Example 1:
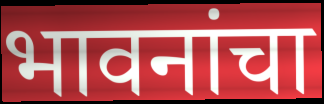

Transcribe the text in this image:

भावनांचा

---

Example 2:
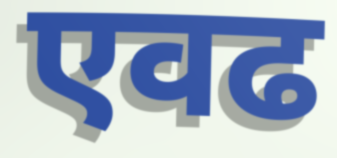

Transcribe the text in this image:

एवढ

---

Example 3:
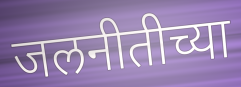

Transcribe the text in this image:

जलनीतीच्या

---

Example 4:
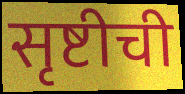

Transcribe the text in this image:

सृष्टीची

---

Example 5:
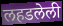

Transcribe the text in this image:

लहडलेली